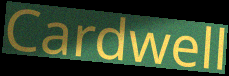
Cardwell